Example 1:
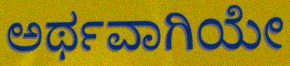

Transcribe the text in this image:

ಅರ್ಥವಾಗಿಯೇ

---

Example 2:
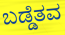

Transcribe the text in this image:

ಬಡ್ಡೆತವ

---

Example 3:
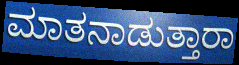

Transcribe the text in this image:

ಮಾತನಾಡುತ್ತಾರಾ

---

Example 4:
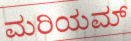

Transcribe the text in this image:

ಮರಿಯಮ್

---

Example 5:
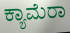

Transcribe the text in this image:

ಕ್ಯಾಮೆರಾ